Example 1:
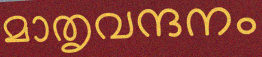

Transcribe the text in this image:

മാതൃവന്ദനം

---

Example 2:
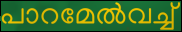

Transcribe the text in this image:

പാറമേൽവച്ച്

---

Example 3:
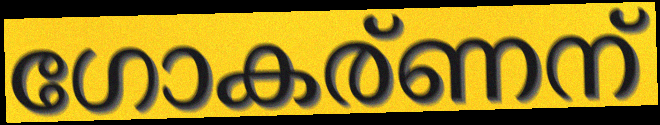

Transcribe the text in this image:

ഗോകര്ണന്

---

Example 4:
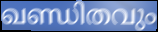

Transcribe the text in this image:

ഖണ്ഡിതവും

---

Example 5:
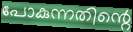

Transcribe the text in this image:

പോകുന്നതിന്റെ